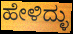
ಹೇಳಿದ್ಳು